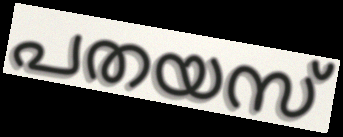
പതയസ്